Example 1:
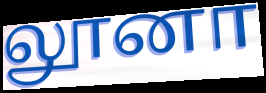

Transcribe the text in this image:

லூனா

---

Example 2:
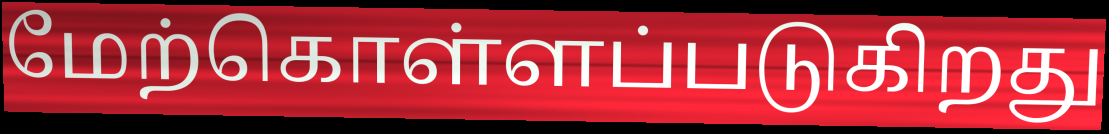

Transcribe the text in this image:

மேற்கொள்ளப்படுகிறது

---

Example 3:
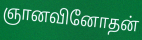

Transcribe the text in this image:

ஞானவினோதன்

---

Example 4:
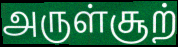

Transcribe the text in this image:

அருள்சூற்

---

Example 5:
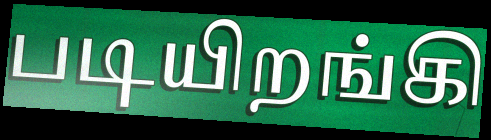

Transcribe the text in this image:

படியிறங்கி